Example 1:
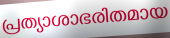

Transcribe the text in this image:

പ്രത്യാശാഭരിതമായ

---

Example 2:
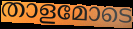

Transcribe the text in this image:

താളമോടെ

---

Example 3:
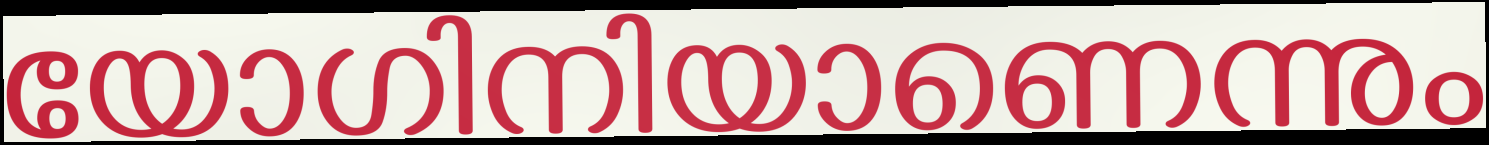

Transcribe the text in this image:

യോഗിനിയാണെന്നും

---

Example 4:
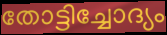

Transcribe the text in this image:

തോട്ടിച്ചോദ്യം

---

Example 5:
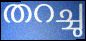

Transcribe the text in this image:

തറച്ചു